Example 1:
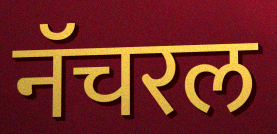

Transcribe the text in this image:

नॅचरल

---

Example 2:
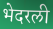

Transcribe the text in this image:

भेदरली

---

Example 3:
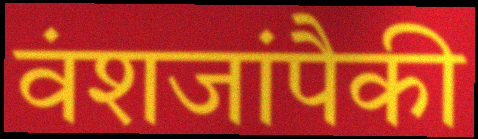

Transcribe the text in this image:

वंशजांपैकी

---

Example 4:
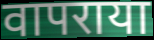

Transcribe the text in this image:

वापराया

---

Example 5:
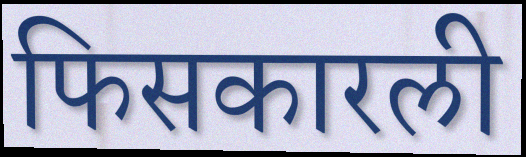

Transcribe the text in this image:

फिसकारली